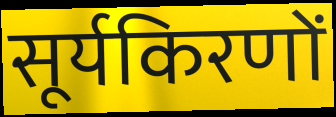
सूर्यकिरणों